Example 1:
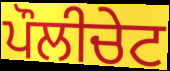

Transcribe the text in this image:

ਪੌਲੀਚੇਟ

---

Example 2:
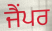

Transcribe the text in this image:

ਜੈਂਪਰ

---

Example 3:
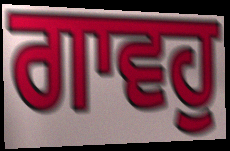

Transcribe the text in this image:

ਗਾਵਹੁ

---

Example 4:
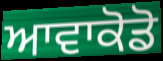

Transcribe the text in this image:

ਆਵਾਕੋਡੋ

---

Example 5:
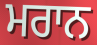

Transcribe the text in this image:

ਮਰਾਨ